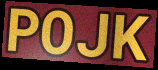
POJK